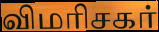
விமரிசகர்